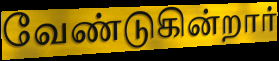
வேண்டுகின்றார்